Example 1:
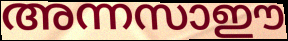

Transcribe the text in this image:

അന്നസാഈ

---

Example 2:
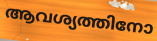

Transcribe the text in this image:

ആവശ്യത്തിനോ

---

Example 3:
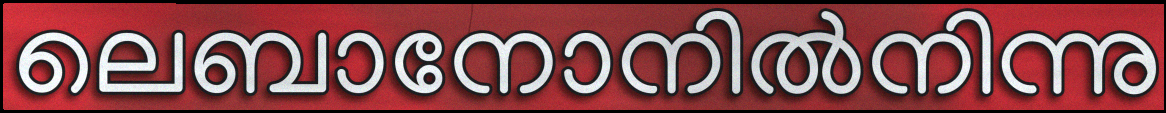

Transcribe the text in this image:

ലെബാനോനിൽനിന്നു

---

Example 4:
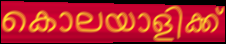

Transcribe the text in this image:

കൊലയാളിക്ക്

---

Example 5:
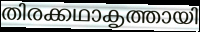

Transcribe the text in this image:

തിരക്കഥാകൃത്തായി